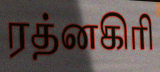
ரத்னகிரி